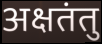
अक्षतंतु